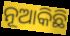
ନୂଆକିଛି